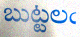
బుట్టలఁ